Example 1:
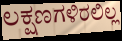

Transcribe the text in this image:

ಲಕ್ಷಣಗಳಿರಲಿಲ್ಲ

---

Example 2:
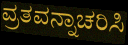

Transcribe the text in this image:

ವ್ರತವನ್ನಾಚರಿಸಿ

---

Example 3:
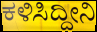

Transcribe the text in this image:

ಕಳಿಸಿದ್ದೀನಿ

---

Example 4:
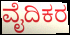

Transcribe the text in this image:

ವೈದಿಕರ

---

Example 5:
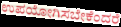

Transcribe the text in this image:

ಉಪಯೋಗಿಸಬೇಕೆಂದರೆ